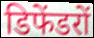
डिफेंडरों